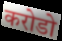
करोडो